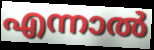
എന്നാൽ